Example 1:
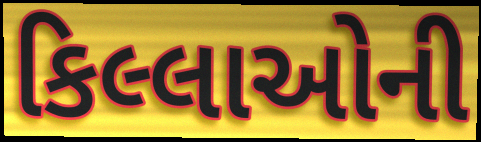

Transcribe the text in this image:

કિલ્લાઓની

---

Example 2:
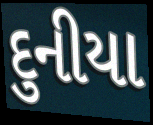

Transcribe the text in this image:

દુનીયા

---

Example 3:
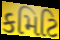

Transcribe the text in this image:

કમિટિ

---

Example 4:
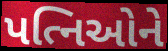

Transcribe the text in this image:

પત્નિઓને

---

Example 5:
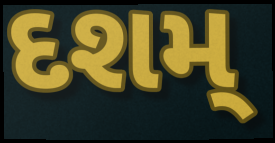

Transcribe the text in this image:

દશમ્